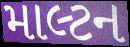
માલ્ટન